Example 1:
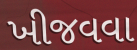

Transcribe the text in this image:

ખીજવવા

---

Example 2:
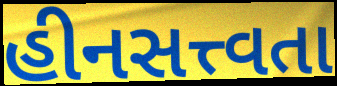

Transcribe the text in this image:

હીનસત્ત્વતા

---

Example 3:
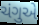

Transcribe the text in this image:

ચંગુએ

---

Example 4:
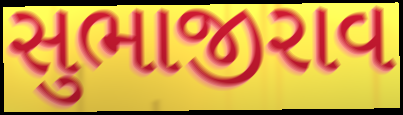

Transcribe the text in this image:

સુભાજીરાવ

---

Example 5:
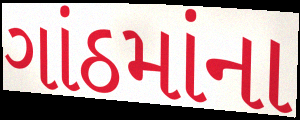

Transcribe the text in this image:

ગાંઠમાંના